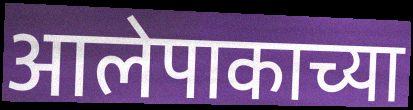
आलेपाकाच्या